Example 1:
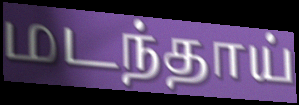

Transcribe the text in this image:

மடந்தாய்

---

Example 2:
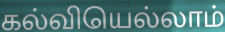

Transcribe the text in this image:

கல்வியெல்லாம்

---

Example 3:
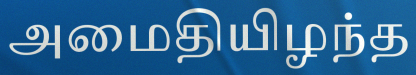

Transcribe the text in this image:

அமைதியிழந்த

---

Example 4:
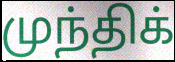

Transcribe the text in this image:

முந்திக்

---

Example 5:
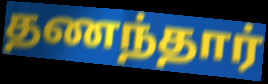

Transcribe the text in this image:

தணந்தார்